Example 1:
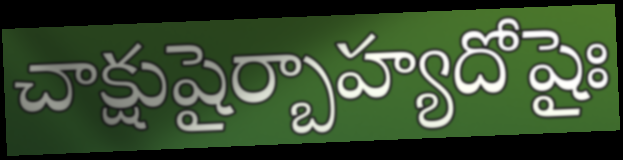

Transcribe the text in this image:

చాక్షుషైర్బాహ్యదోషైః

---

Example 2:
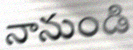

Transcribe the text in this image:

నానుండి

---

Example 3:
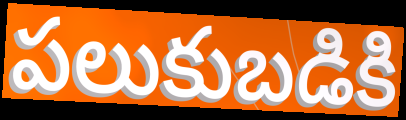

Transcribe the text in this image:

పలుకుబడికి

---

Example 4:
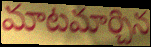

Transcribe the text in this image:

మాటమార్చిన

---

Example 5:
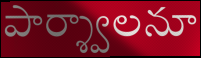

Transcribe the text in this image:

పార్శ్వాలనూ